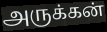
அருக்கன்